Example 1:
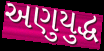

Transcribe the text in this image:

અણુયુદ્ધ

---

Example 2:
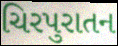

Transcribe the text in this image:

ચિરપુરાતન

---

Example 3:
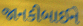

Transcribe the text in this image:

જાનકીબાઈને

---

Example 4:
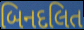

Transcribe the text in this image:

બિનદલિત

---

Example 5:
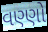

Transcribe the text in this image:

વણ્ણો